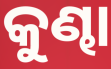
କୁଣ୍ଢା